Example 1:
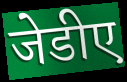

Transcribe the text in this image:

जेडीए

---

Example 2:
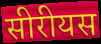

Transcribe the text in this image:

सीरीयस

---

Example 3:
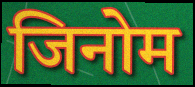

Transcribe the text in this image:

जिनोम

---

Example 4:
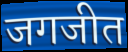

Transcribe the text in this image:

जगजीत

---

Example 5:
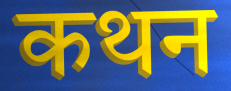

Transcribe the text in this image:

कथन